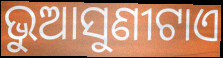
ଭୁଆସୁଣୀଟାଏ